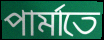
পার্মাতে